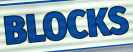
BLOCKS